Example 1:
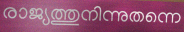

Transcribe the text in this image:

രാജ്യത്തുനിന്നുതന്നെ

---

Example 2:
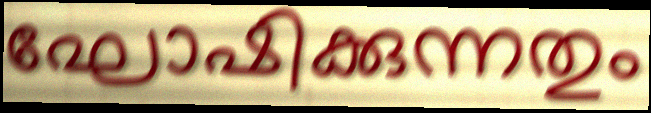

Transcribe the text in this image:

ഘോഷിക്കുന്നതും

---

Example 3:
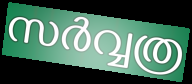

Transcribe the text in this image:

സർവ്വത്ര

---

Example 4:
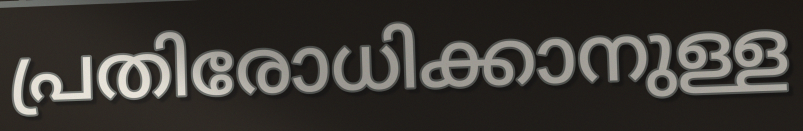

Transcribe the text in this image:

പ്രതിരോധിക്കാനുള്ള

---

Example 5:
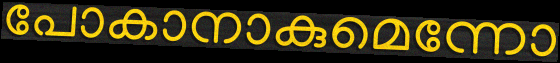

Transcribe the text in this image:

പോകാനാകുമെന്നോ